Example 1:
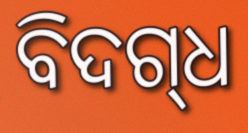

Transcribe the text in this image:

ବିଦଗ୍‌ଧ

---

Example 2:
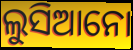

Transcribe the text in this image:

ଲୁସିଆନୋ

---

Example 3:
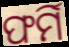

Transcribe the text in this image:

ଫର୍ମି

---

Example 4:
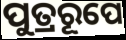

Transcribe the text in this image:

ପୁତ୍ରରୂପେ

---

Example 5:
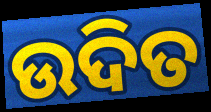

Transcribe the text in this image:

ଉଦିତ